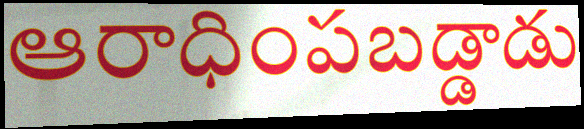
ఆరాధింపబడ్డాడు